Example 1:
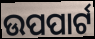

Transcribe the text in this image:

ଉପପାର୍ଟ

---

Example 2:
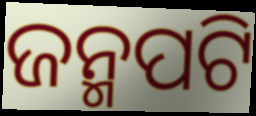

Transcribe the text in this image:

ଜନ୍ମପଟି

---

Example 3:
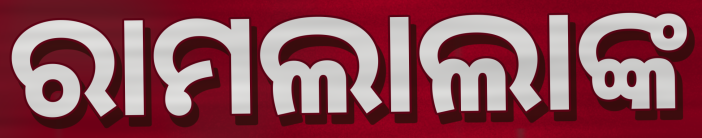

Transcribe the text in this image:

ରାମଲାଲାଙ୍କ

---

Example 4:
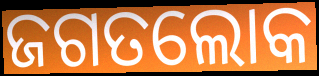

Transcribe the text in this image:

ଜଗତଲୋକ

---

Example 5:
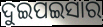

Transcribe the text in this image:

ଦୁଇପଇସାର